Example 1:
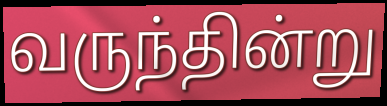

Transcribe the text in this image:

வருந்தின்று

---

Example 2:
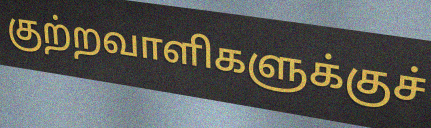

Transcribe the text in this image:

குற்றவாளிகளுக்குச்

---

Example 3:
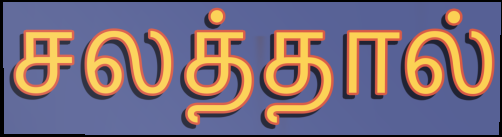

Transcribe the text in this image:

சலத்தால்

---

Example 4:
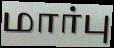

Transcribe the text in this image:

மார்பு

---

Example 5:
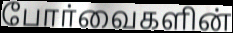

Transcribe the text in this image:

போர்வைகளின்